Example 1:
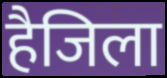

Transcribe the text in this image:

हैजिला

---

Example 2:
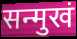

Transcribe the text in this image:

सन्मुखं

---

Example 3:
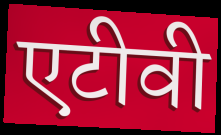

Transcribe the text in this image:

एटीवी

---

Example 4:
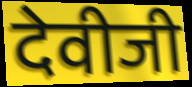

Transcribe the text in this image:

देवीजी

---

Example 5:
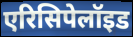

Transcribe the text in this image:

एरिसिपेलॉइड